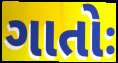
ગાતોઃ